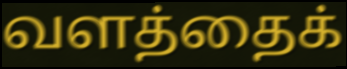
வளத்தைக்